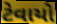
ટેવાયો